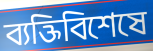
ব্যক্তিবিশেষে